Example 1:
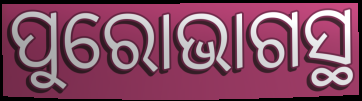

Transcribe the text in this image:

ପୁରୋଭାଗସ୍ଥ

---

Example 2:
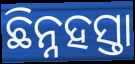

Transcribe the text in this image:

ଛିନ୍ନହସ୍ତା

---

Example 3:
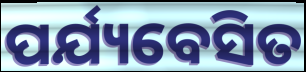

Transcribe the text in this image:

ପର୍ଯ୍ୟବେସିତ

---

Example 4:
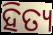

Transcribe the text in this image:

ହିତ୍ୟ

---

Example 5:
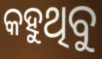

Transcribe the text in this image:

କହୁଥିବୁ